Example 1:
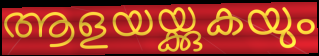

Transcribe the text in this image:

ആളയയ്ക്കുകയും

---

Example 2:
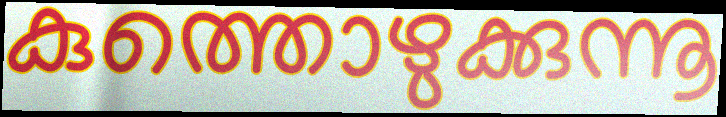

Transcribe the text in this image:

കുത്തൊഴുക്കുന്നൂ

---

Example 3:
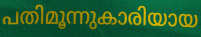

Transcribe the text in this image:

പതിമൂന്നുകാരിയായ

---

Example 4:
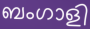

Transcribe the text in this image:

ബംഗാളി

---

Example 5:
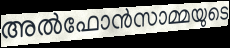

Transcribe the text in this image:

അൽഫോൻസാമ്മയുടെ